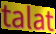
talat